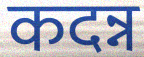
कदन्न